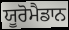
ਯੂਰੋਮੈਡਾਨ